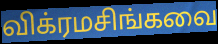
விக்ரமசிங்கவை